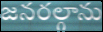
జనరల్గాను